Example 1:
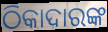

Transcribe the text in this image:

ଠିକାଦାରଙ୍କ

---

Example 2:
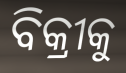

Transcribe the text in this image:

ବିକ୍ରୀକୁ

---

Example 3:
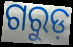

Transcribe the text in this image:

ଗରୁଡ଼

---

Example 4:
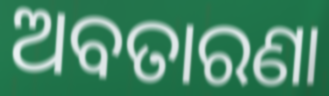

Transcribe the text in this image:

ଅବତାରଣା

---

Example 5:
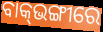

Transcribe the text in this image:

ବାକ୍‍ଭଙ୍ଗୀରେ